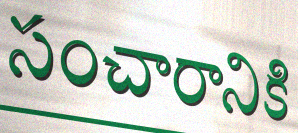
సంచారానికి